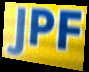
JPF